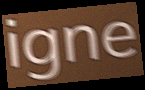
igne